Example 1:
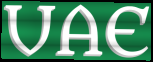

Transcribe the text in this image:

UAE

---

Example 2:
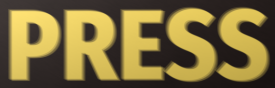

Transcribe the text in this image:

PRESS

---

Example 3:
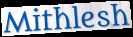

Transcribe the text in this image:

Mithlesh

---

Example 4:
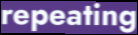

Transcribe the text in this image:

repeating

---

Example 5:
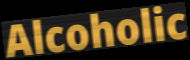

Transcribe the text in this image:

Alcoholic